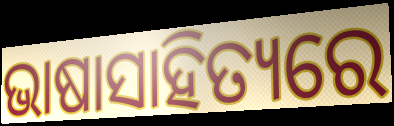
ଭାଷାସାହିତ୍ୟରେ